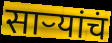
साऱ्यांचं